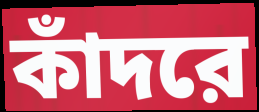
কাঁদরে